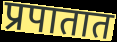
प्रपातात